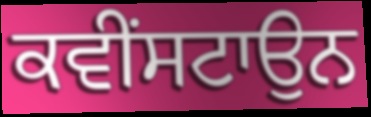
ਕਵੀਂਸਟਾਉਨ